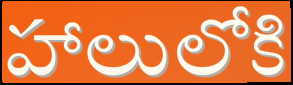
హాలులోకి